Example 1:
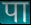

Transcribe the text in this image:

पा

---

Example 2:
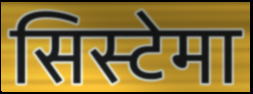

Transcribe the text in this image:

सिस्टेमा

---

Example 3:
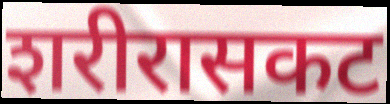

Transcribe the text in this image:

शरीरासकट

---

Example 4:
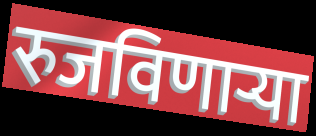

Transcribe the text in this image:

रुजविणाऱ्या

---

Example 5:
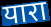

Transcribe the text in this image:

यारा